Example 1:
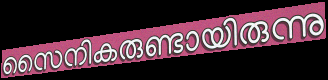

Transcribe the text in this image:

സൈനികരുണ്ടായിരുന്നു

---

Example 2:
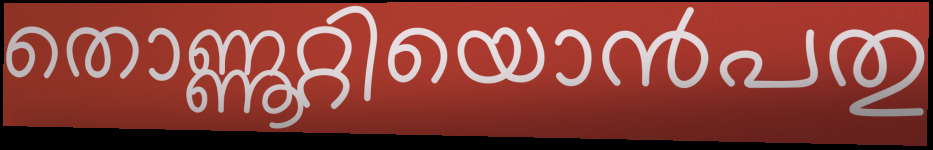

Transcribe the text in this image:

തൊണ്ണൂറ്റിയൊൻപതു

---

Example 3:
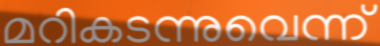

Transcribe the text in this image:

മറികടന്നുവെന്ന്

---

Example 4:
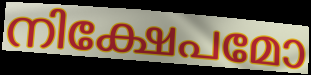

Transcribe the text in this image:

നിക്ഷേപമോ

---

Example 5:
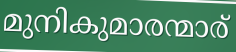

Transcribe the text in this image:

മുനികുമാരന്മാര്